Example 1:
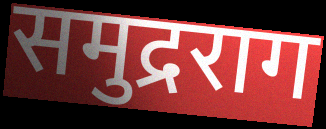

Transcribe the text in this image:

समुद्रराग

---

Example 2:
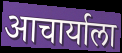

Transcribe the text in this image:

आचार्याला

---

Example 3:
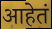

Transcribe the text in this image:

आहेतं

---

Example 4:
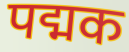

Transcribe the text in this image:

पद्मक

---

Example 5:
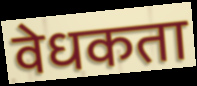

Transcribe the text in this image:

वेधकता